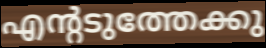
എന്റടുത്തേക്കു